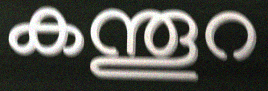
കന്തൂറ